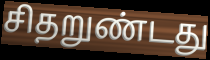
சிதறுண்டது